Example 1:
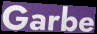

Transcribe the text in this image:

Garbe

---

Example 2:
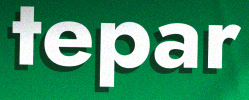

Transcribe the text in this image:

tepar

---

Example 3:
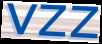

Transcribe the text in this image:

vzz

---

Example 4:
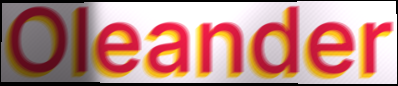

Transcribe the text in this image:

Oleander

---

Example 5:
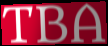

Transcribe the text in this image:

TBA